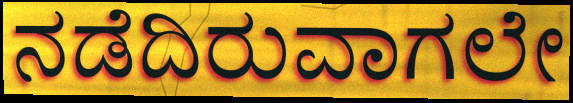
ನಡೆದಿರುವಾಗಲೇ